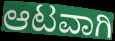
ಆಟವಾಗಿ